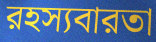
রহস্যবারতা